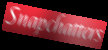
Snapchatters